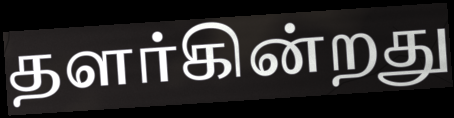
தளர்கின்றது